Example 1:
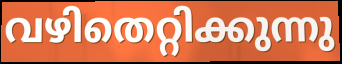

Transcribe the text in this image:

വഴിതെറ്റിക്കുന്നു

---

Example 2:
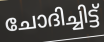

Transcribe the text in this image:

ചോദിച്ചിട്ട്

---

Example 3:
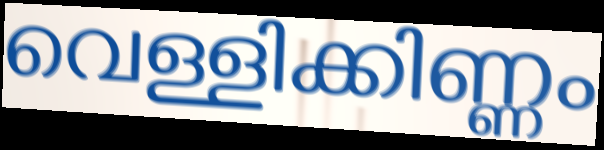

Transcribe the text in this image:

വെള്ളിക്കിണ്ണം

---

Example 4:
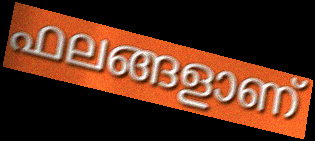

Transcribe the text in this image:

ഫലങ്ങളാണ്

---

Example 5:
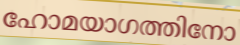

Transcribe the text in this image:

ഹോമയാഗത്തിനോ